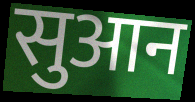
सुआन